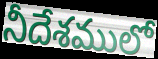
నీదేశములో